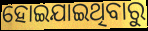
ହୋଇଯାଇଥିବାରୁ